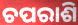
ଚପରାଶି